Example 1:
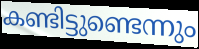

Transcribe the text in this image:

കണ്ടിട്ടുണ്ടെന്നും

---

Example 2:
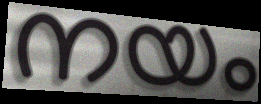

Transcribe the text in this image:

നയം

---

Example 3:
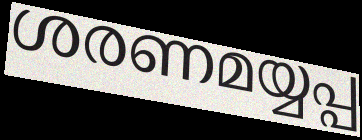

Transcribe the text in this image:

ശരണമയ്യപ്പ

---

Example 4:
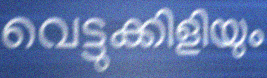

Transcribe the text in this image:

വെട്ടുക്കിളിയും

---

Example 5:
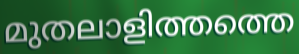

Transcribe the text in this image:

മുതലാളിത്തത്തെ